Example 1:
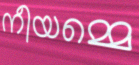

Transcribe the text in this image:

നീയമ്മെ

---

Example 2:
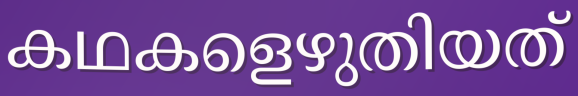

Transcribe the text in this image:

കഥകളെഴുതിയത്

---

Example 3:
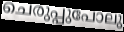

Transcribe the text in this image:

ചെരുപ്പുപോലു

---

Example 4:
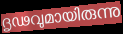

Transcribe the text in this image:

ദൃഢവുമായിരുന്നു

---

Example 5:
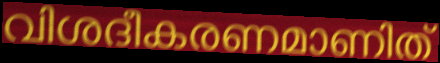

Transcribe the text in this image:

വിശദീകരണമാണിത്